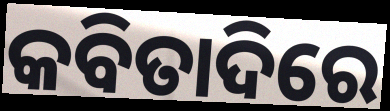
କବିତାଦିରେ